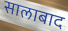
सालाबाद